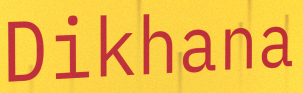
Dikhana